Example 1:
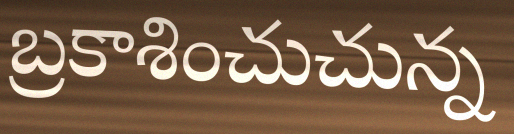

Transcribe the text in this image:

బ్రకాశించుచున్న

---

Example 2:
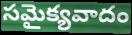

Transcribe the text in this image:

సమైక్యవాదం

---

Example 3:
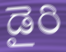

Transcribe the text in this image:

డైరి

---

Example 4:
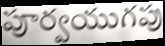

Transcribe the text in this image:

పూర్వయుగపు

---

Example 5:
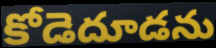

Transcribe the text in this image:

కోడెదూడను